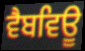
ਵੈਬਵਿਊ